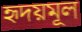
হৃদয়মূল